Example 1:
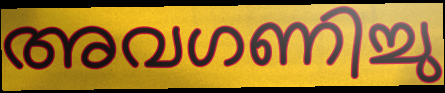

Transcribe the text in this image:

അവഗണിച്ചു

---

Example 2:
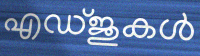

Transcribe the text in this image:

എഡ്ജുകൾ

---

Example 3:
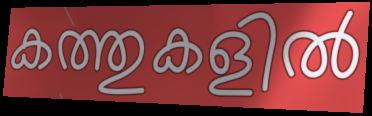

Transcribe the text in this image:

കത്തുകളിൽ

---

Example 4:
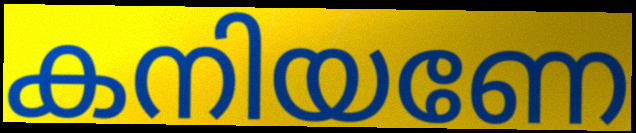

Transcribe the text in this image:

കനിയണേ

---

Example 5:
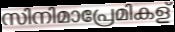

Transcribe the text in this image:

സിനിമാപ്രേമികള്